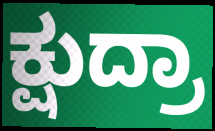
ಕ್ಷುದ್ರಾ